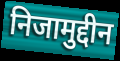
निजामुद्दीन